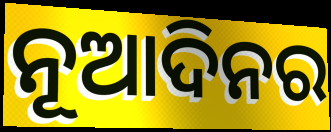
ନୂଆଦିନର